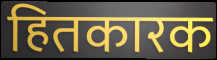
हितकारक